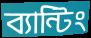
ব্যান্টিং